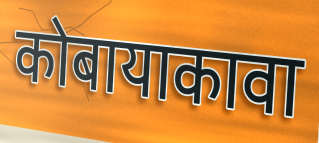
कोबायाकावा